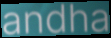
andha